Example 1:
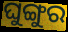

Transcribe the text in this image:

ଘୁଙ୍ଗୁର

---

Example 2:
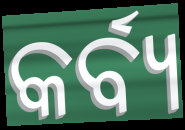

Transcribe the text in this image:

କର୍ବ୍ୟ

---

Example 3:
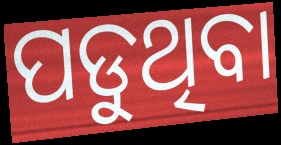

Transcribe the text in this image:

ପଡୁଥିବା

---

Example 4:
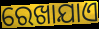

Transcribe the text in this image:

ରେଖାଯାଏ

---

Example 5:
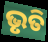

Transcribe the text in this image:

ଭୃତି